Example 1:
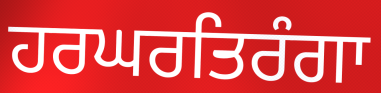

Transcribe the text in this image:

ਹਰਘਰਤਿਰੰਗਾ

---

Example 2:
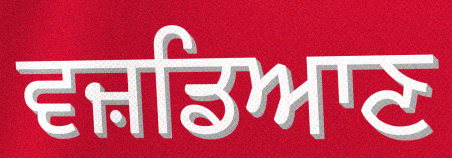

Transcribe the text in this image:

ਵਜ਼ਡਿਆਣ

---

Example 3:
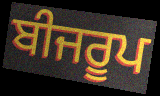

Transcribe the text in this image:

ਬੀਜਰੂਪ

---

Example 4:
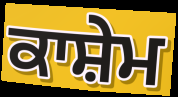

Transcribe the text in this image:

ਕਾਸ਼ੇਮ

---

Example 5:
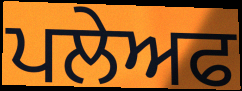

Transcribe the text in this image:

ਪਲੇਅਫ